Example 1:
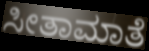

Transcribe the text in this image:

ಸೀತಾಮಾತೆ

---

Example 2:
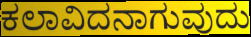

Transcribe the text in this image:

ಕಲಾವಿದನಾಗುವುದು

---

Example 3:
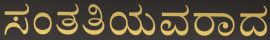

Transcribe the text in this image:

ಸಂತತಿಯವರಾದ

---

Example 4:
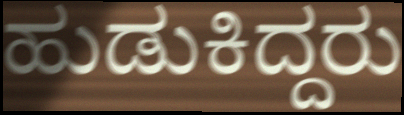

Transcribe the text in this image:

ಹುಡುಕಿದ್ದರು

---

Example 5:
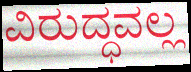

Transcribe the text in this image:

ವಿರುದ್ಧವಲ್ಲ